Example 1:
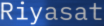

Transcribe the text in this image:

Riyasat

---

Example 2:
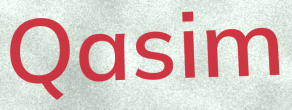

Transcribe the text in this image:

Qasim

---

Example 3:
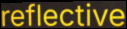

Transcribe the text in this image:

reflective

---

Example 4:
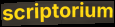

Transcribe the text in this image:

scriptorium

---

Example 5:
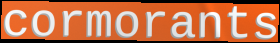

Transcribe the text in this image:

cormorants